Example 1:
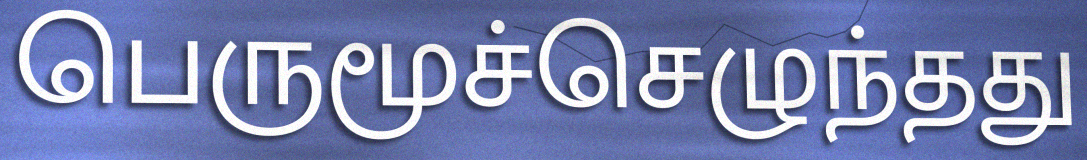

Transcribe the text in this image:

பெருமூச்செழுந்தது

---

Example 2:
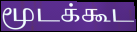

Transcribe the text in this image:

மூடக்கூட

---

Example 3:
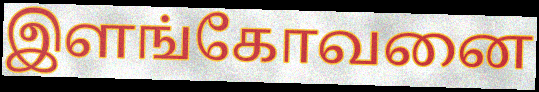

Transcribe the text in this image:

இளங்கோவனை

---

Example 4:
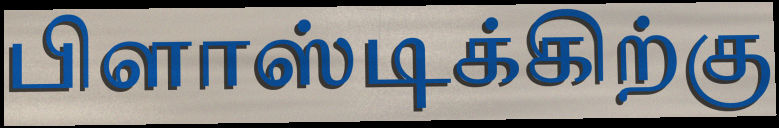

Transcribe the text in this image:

பிளாஸ்டிக்கிற்கு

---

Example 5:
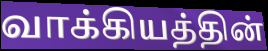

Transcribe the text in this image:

வாக்கியத்தின்